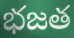
భజత